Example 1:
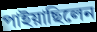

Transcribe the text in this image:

পাইয়াছিলেন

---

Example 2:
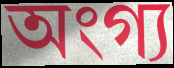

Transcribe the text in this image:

অংগ্য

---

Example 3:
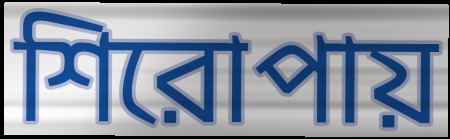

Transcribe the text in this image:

শিরোপায়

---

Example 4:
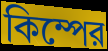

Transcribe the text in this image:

কিম্পের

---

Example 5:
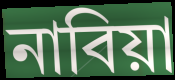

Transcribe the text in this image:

নাবিয়া